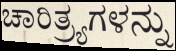
ಚಾರಿತ್ರ್ಯಗಳನ್ನು